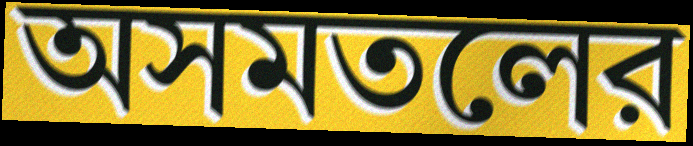
অসমতলের